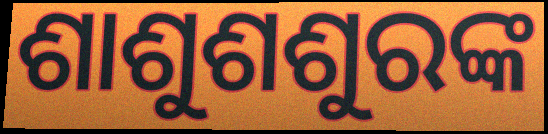
ଶାଶୁଶଶୁରଙ୍କ